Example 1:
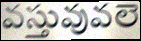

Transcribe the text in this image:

వస్తువువలె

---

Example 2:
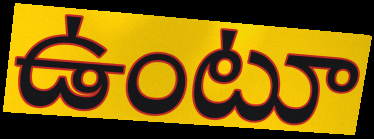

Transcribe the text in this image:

ఉంటూ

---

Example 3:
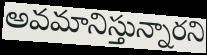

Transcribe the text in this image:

అవమానిస్తున్నారని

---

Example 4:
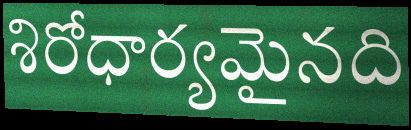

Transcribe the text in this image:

శిరోధార్యమైనది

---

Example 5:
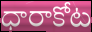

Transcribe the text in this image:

ధారాకోట